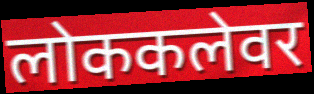
लोककलेवर